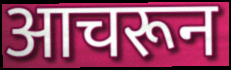
आचरून